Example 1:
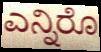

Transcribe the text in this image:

ಎನ್ನಿರೊ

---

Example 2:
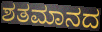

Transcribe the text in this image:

ಶತಮಾನದ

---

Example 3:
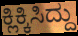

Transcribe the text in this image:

ಕ್ಲಿಕ್ಕಿಸಿದ್ದು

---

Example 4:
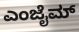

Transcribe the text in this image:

ಎಂಜೈಮ್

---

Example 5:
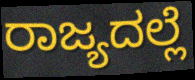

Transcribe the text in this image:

ರಾಜ್ಯದಲ್ಲೆ